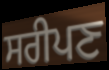
ਸਰੀਪਣ